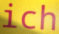
ich